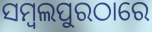
ସମ୍ବଲପୁରଠାରେ